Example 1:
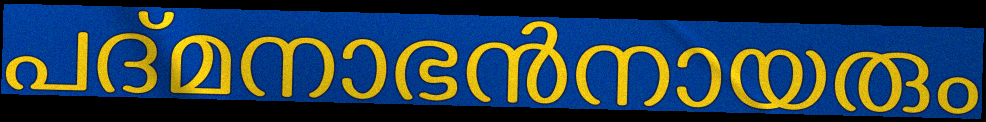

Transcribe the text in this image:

പദ്മനാഭൻനായരും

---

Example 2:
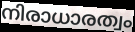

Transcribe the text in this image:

നിരാധാരത്വം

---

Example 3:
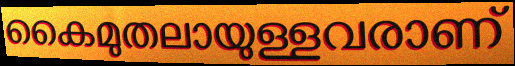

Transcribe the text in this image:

കൈമുതലായുള്ളവരാണ്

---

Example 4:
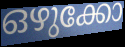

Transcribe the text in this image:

ഒഴുക്കോ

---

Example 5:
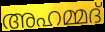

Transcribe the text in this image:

അഹമ്മദ്